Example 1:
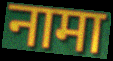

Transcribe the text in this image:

नामा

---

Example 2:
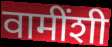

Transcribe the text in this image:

वामींशी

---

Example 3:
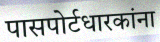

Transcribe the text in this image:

पासपोर्टधारकांना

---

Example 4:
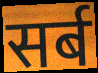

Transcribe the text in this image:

सर्ब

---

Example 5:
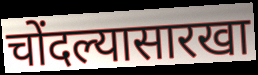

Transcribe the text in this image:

चोंदल्यासारखा